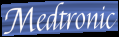
Medtronic